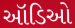
ઑડિઓ